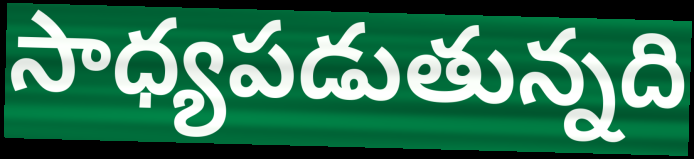
సాధ్యపడుతున్నది